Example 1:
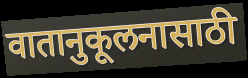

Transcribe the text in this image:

वातानुकूलनासाठी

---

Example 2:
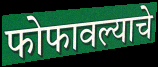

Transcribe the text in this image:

फोफावल्याचे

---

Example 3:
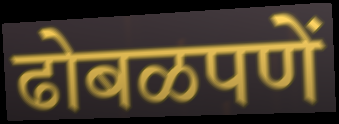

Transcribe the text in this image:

ढोबळपणें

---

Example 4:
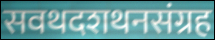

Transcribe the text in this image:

सवथदशथनसंग्रह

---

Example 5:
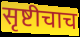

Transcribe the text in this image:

सृष्टीचाच